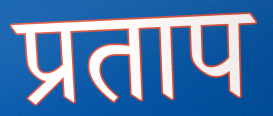
प्रताप